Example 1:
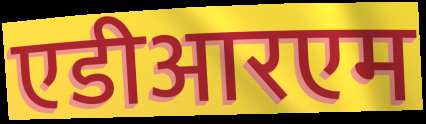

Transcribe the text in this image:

एडीआरएम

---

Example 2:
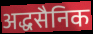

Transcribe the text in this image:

अद्धसैनिक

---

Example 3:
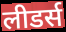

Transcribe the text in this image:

लीडर्स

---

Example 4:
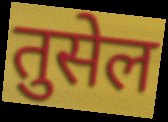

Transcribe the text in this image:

तुसेल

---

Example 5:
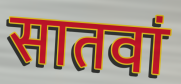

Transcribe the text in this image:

सातवां